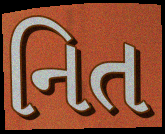
નિત